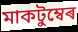
মাকটুম্বেৰ